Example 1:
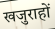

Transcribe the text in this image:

खजुराहों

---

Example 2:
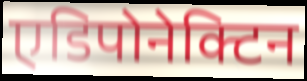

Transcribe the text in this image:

एडिपोनेक्टिन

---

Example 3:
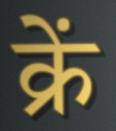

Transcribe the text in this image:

क्रें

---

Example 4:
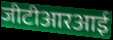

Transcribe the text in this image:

जीटीआरआई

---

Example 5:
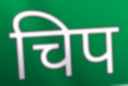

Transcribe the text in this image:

चिप